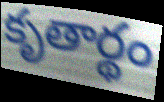
కృతార్థం